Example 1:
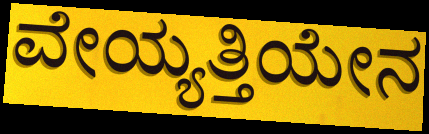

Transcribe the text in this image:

ವೇಯ್ಯತ್ತಿಯೇನ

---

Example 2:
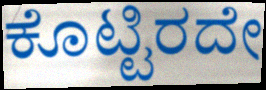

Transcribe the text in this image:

ಕೊಟ್ಟಿರದೇ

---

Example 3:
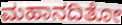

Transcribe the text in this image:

ಮಹಾನದಿತೋ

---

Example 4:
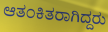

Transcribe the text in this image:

ಆತಂಕಿತರಾಗಿದ್ದರು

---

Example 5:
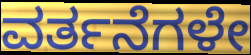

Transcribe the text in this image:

ವರ್ತನೆಗಳೇ